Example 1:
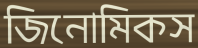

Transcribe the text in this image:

জিনোমিকস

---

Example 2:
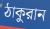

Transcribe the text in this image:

ঠাকুরান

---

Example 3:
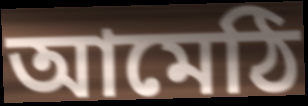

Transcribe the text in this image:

আমেঠি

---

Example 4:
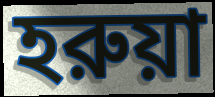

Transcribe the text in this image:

হরুয়া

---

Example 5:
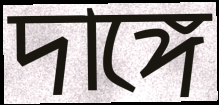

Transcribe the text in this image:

দাঙ্গে